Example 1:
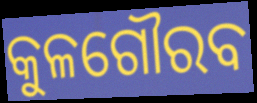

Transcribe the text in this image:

କୁଳଗୌରବ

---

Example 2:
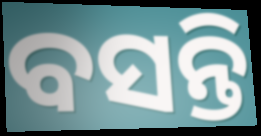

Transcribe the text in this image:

ବସନ୍ତି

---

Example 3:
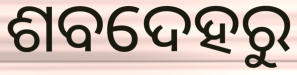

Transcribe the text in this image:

ଶବଦେହରୁ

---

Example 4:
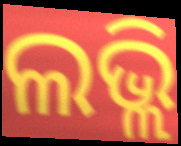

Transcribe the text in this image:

ଲଭ୍ଲି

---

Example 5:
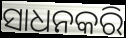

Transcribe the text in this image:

ସାଧନକରି